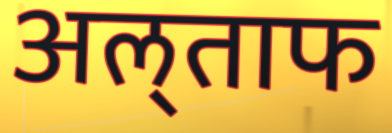
अल्ताफ